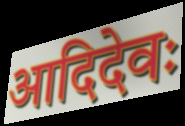
आदिदेवः